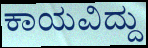
ಕಾಯವಿದ್ದು